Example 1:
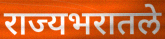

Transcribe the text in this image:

राज्यभरातले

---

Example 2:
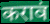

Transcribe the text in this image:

करावं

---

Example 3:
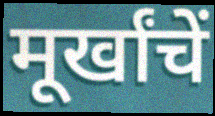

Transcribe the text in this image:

मूर्खांचें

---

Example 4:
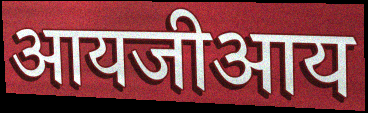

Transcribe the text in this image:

आयजीआय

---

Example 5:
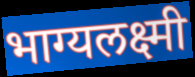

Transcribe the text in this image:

भाग्यलक्ष्मी